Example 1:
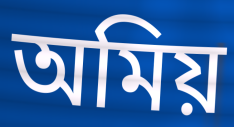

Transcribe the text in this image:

অমিয়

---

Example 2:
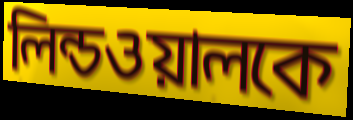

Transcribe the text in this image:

লিন্ডওয়ালকে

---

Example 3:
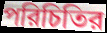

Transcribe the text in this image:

পরিচিতির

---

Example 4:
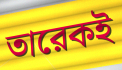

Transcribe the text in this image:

তারেকই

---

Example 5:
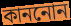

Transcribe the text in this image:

কাননোন